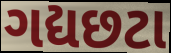
ગદ્યછટા